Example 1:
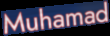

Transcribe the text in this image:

Muhamad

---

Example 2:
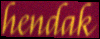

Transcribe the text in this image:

hendak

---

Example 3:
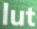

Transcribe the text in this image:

lut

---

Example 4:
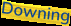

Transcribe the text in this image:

Downing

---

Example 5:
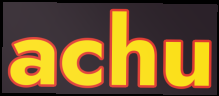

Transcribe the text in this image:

achu